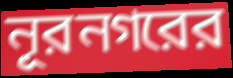
নূরনগরের